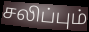
சலிப்பும்